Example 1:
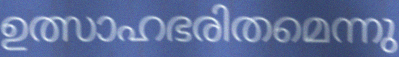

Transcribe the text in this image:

ഉത്സാഹഭരിതമെന്നു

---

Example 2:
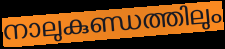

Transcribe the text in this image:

നാലുകുണ്ഡത്തിലും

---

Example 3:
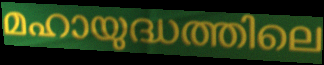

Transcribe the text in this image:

മഹായുദ്ധത്തിലെ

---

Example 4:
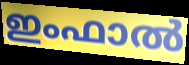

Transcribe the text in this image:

ഇംഫാൽ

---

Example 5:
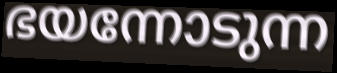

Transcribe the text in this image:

ഭയന്നോടുന്ന